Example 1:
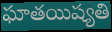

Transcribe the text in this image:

ఘాతయిష్యతి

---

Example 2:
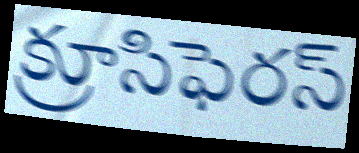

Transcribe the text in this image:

క్రూసిఫెరస్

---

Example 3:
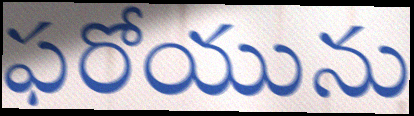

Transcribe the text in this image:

ఫరోయును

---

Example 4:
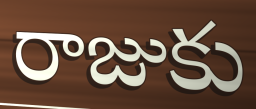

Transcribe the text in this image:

రాజుకు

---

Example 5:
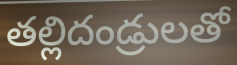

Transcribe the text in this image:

తల్లిదండ్రులతో